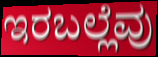
ಇರಬಲ್ಲೆವು